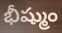
భీష్ముం